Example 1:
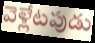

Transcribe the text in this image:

వెళ్లేటపుడు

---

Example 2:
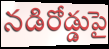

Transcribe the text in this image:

నడిరోడ్డుపై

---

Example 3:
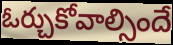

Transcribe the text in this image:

ఓర్చుకోవాల్సిందే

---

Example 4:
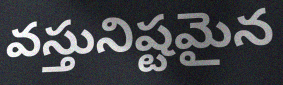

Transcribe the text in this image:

వస్తునిష్టమైన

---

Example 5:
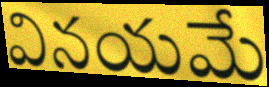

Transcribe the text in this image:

వినయమే